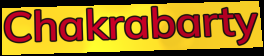
Chakrabarty